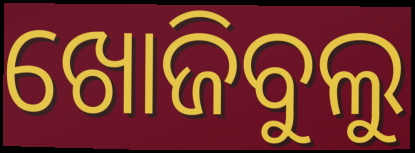
ଖୋଜିବୁଲୁ